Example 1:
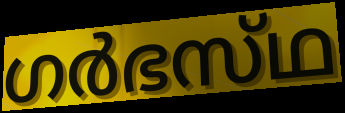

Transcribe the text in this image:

ഗർഭസ്‌ഥ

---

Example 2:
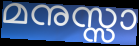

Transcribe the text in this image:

മനുസ്സാ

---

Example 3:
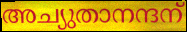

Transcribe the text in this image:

അച്യുതാനന്ദന്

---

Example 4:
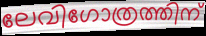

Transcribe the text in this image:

ലേവിഗോത്രത്തിന്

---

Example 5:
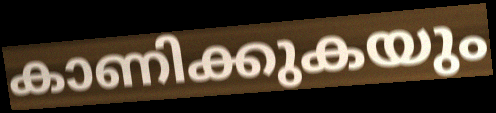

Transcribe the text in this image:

കാണിക്കുകയും